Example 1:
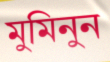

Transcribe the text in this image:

মুমিনুন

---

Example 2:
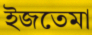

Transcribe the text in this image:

ইজতেমা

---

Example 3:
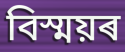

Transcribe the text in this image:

বিস্ময়ৰ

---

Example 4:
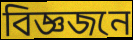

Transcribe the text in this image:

বিজ্ঞজনে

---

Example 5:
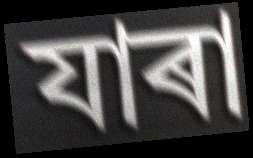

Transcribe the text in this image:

যাৰা